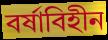
বর্ষাবিহীন